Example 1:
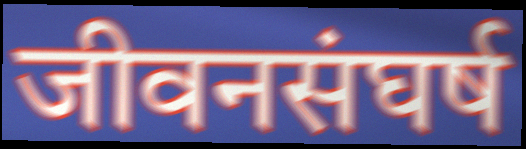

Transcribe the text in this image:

जीवनसंघर्ष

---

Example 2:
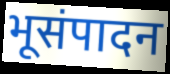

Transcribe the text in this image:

भूसंपादन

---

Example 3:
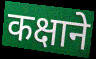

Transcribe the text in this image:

कक्षाने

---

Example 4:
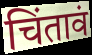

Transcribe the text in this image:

चिंतावं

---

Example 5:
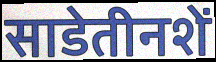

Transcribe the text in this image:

साडेतीनशें